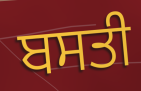
ਬਸਤੀ